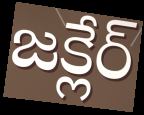
జక్లేర్